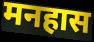
मनहास